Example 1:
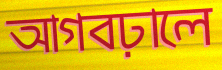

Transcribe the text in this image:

আগবঢ়ালে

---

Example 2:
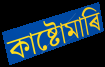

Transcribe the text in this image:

কাষ্টোমাৰি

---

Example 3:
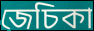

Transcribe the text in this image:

জেচিকা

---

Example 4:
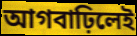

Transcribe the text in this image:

আগবাঢ়িলেই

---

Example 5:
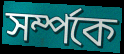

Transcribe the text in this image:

সৰ্ম্পকে